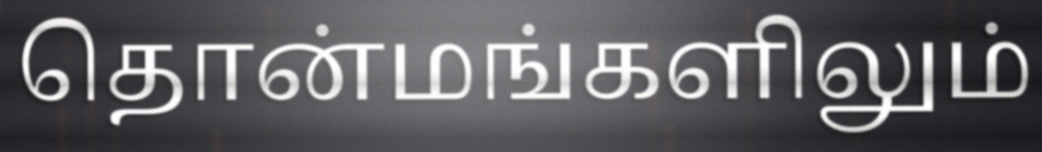
தொன்மங்களிலும்